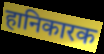
हानिकारक